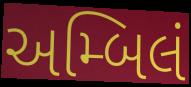
અમ્બિલં